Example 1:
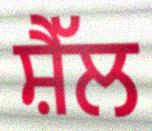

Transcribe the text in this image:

ਸ਼ੈੱਲ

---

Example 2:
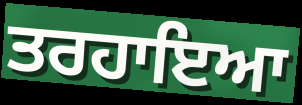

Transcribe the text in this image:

ਤਰਹਾਇਆ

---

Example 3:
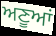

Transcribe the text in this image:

ਅਣੂਆਂ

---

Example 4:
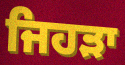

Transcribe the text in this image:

ਜਿਹੜਾ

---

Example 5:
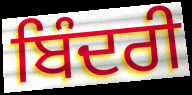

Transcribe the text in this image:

ਬਿੰਦਰੀ